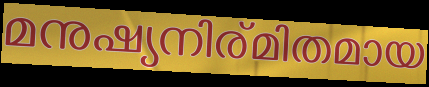
മനുഷ്യനിര്മിതമായ